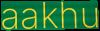
aakhu